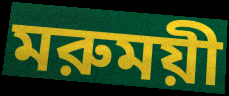
মরুময়ী